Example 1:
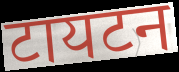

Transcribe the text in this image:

टायटन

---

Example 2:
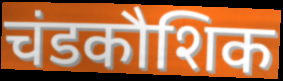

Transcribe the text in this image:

चंडकौशिक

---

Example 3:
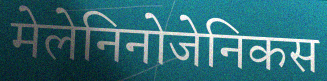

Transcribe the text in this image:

मेलेनिनोजेनिकस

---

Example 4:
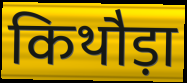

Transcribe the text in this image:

किथौड़ा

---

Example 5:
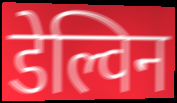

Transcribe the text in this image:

डेल्विन